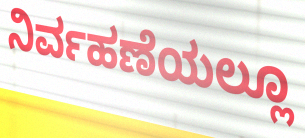
ನಿರ್ವಹಣೆಯಲ್ಲೂ